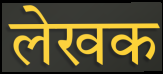
लेखक